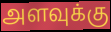
அளவுக்கு